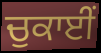
ਚੁਕਾਈਂ